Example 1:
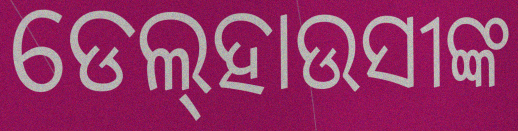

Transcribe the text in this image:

ଡେଲ୍‌ହାଉସୀଙ୍କ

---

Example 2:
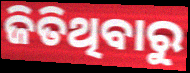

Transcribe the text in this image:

ଜିତିଥିବାରୁ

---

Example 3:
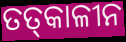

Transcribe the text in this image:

ତତ୍‌କାଳୀନ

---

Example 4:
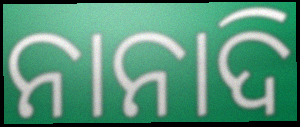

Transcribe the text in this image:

ନାନାଦି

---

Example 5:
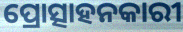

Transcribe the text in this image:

ପ୍ରୋତ୍ସାହନକାରୀ